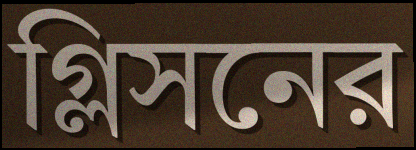
গ্লিসনের